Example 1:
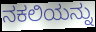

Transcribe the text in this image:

ನಕಲಿಯನ್ನು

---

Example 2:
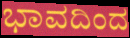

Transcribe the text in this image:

ಭಾವದಿಂದ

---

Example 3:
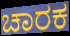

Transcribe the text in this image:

ಚಾರಕ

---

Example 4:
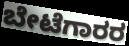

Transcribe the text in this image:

ಬೇಟೆಗಾರರ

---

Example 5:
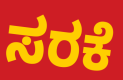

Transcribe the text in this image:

ಸರಕೆ